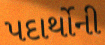
પદાર્થોની